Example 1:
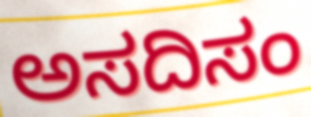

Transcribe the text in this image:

ಅಸದಿಸಂ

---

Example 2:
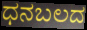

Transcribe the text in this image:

ಧನಬಲದ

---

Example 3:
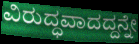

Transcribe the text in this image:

ವಿರುದ್ಧವಾದದ್ದನ್ನೇ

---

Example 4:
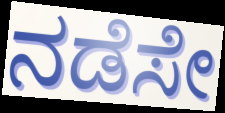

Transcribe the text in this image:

ನಡೆಸೇ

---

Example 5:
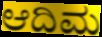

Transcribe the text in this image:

ಆದಿಮ